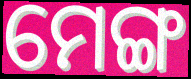
ମେଙ୍ଗ